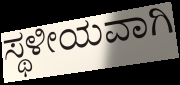
ಸ್ಥಳೀಯವಾಗಿ